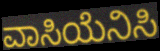
ವಾಸಿಯೆನಿಸಿ